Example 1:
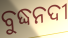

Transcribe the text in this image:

ବୁଦ୍ଧନଦୀ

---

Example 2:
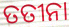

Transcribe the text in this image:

ତତୀନା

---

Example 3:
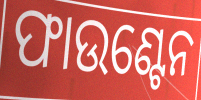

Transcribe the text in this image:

ଫାଉଣ୍ଟେନ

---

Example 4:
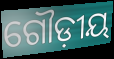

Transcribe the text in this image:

ଗୌଡ଼ୀୟ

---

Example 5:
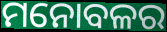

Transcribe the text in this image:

ମନୋବଳର